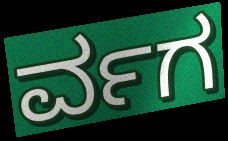
ರ್ವಗ